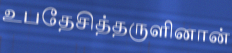
உபதேசித்தருளினான்